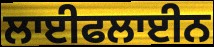
ਲਾਈਫਲਾਈਨ